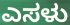
ಎಸಳು